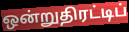
ஒன்றுதிரட்டிப்